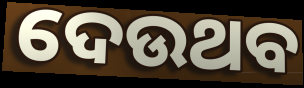
ଦେଉଥବ